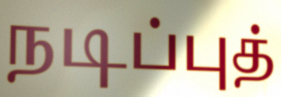
நடிப்புத்